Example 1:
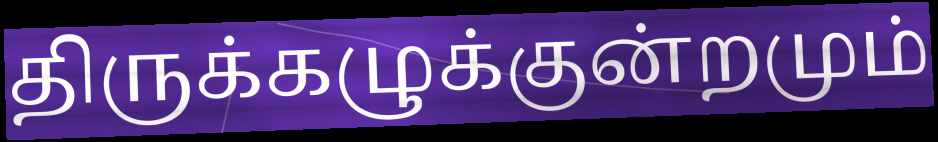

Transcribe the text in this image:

திருக்கழுக்குன்றமும்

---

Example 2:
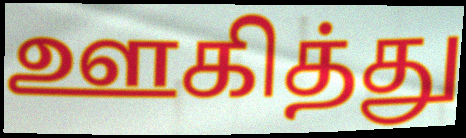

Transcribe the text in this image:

ஊகித்து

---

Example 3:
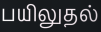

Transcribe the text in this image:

பயிலுதல்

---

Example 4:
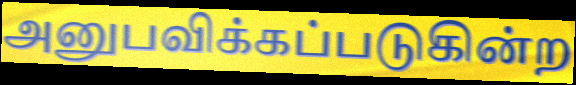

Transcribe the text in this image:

அனுபவிக்கப்படுகின்ற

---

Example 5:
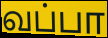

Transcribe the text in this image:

வப்பா